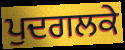
ਪੁਦਗਲਕੇ